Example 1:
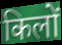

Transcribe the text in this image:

किलों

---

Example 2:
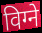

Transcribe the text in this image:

विग्ने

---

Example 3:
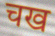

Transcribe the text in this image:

चख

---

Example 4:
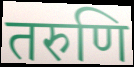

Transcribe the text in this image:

तरुणि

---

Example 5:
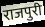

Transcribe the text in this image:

राजपुरी